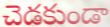
చెడకుండా